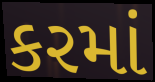
કરમાં